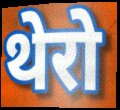
थेरो